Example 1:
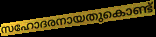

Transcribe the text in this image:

സഹോദരനായതുകൊണ്ട്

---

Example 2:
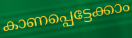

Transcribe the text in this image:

കാണപ്പെട്ടേക്കാം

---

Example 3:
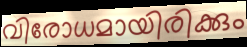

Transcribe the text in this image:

വിരോധമായിരിക്കും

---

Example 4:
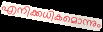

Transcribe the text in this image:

എനിക്കധികമൊന്നും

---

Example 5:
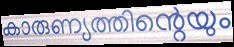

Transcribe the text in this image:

കാരുണ്യത്തിന്റെയും